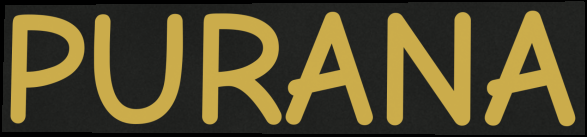
PURANA